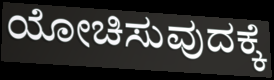
ಯೋಚಿಸುವುದಕ್ಕೆ